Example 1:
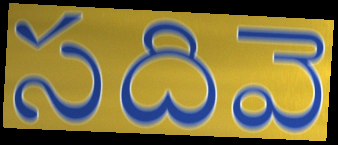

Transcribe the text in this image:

సదివె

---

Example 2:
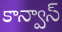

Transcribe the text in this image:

కాన్వాస్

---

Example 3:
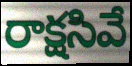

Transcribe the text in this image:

రాక్షసివే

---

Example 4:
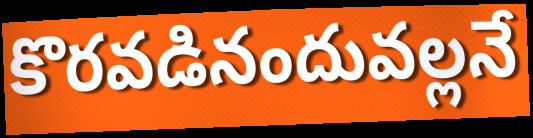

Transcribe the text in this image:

కొరవడినందువల్లనే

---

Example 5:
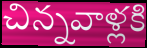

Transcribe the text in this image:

చిన్నవాళ్లకి